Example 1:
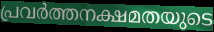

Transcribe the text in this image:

പ്രവർത്തനക്ഷമതയുടെ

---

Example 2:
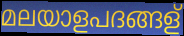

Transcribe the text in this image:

മലയാളപദങ്ങള്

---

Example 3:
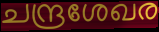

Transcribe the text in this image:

ചന്ദ്രശേഖര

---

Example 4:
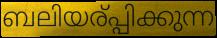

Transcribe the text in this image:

ബലിയര്പ്പിക്കുന്ന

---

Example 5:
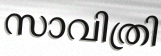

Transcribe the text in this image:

സാവിത്രി